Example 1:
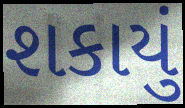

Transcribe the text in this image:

શકાયું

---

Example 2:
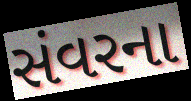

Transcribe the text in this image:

સંવરના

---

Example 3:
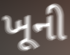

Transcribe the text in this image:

ખૂની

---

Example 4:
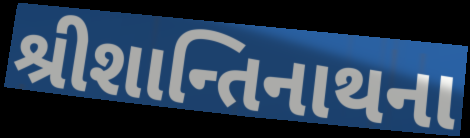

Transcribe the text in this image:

શ્રીશાન્તિનાથના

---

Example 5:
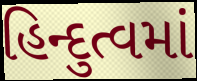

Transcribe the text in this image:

હિન્દુત્વમાં